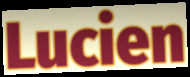
Lucien